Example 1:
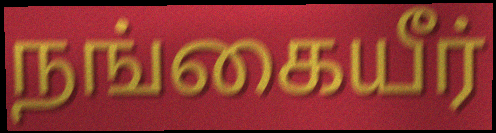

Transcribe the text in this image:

நங்கையீர்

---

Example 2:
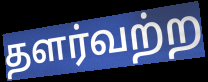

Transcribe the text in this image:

தளர்வற்ற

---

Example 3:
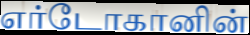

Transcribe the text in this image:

எர்டோகானின்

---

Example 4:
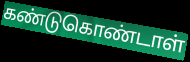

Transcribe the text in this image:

கண்டுகொண்டாள்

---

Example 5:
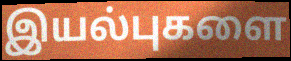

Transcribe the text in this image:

இயல்புகளை